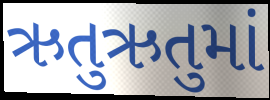
ઋતુઋતુમાં